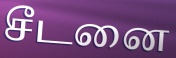
சீடனை